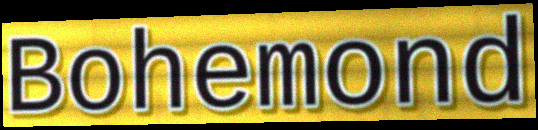
Bohemond